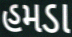
હમડા